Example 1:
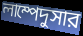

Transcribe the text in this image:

লাম্পেদুসার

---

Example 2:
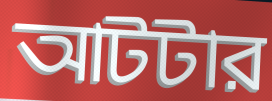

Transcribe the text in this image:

আটটার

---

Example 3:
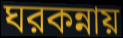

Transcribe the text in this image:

ঘরকন্নায়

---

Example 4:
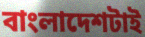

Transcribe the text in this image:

বাংলাদেশটাই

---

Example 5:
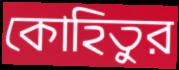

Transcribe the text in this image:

কোহিতুর